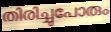
തിരിച്ചുപോരും